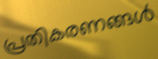
പ്രതികരണങ്ങൾ